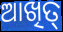
ଆଖିତ୍